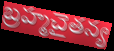
బ్రహ్మచైతన్య